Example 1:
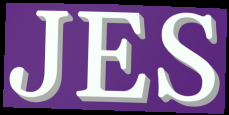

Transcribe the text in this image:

JES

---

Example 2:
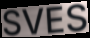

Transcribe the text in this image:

SVES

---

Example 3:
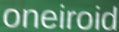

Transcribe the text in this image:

oneiroid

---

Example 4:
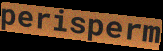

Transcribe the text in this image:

perisperm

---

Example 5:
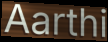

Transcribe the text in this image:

Aarthi